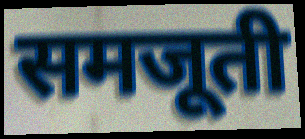
समजूती